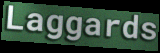
Laggards